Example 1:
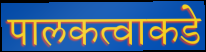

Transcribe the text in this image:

पालकत्वाकडे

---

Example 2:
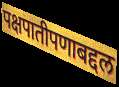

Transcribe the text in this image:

पक्षपातीपणाबद्दल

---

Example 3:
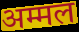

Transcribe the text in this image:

अम्मल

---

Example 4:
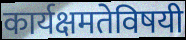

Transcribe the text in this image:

कार्यक्षमतेविषयी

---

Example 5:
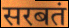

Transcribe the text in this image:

सरबतं